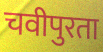
चवीपुरता